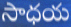
సాధయ